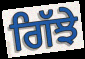
ਗਿੱਝੇ